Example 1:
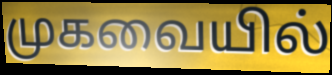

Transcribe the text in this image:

முகவையில்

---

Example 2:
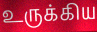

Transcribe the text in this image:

உருக்கிய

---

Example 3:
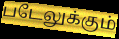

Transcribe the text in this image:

படேலுக்கும்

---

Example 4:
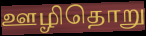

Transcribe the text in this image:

ஊழிதொறு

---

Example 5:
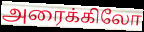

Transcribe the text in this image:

அரைக்கிலோ